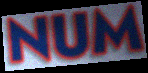
NUM